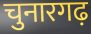
चुनारगढ़